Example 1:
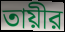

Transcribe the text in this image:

তায়ীর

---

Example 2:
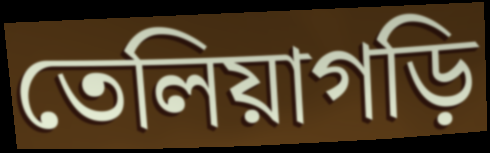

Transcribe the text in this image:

তেলিয়াগড়ি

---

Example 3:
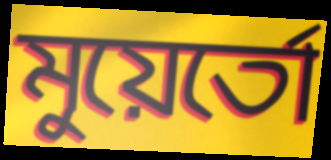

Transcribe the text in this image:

মুয়ের্তো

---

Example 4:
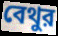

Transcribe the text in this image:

বেথুর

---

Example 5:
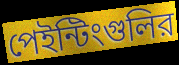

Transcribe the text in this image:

পেইন্টিংগুলির